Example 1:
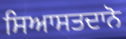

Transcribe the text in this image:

ਸਿਆਸਤਦਾਨੋ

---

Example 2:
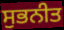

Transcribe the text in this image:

ਸੁਭਨੀਤ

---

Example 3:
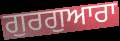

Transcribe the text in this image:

ਗੁਰਗੁਆਰਾ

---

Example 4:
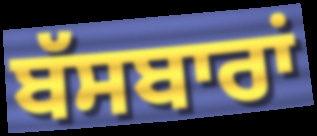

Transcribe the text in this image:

ਬੱਸਬਾਰਾਂ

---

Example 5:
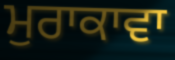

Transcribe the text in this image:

ਮੁਰਾਕਾਵਾ